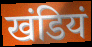
खंडियं